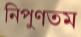
নিপুণতম